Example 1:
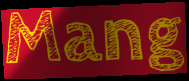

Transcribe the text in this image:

Mang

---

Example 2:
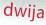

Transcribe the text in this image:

dwija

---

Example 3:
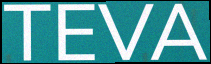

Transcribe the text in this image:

TEVA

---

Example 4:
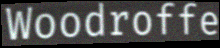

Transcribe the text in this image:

Woodroffe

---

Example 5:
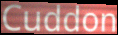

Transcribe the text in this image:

Cuddon